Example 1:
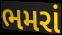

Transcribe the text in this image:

ભમરાં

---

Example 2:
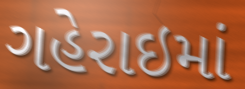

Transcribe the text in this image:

ગહેરાઇમાં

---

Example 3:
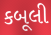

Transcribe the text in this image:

કબૂલી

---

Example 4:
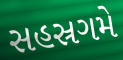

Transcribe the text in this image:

સહસ્રગમે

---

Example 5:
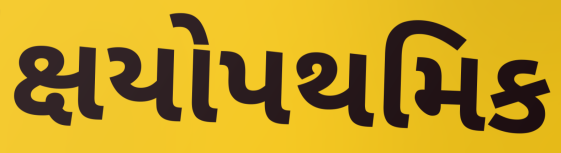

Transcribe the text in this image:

ક્ષયોપથમિક